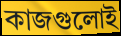
কাজগুলোই